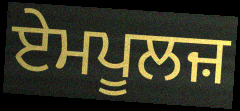
ਏਮਪੂਲਜ਼